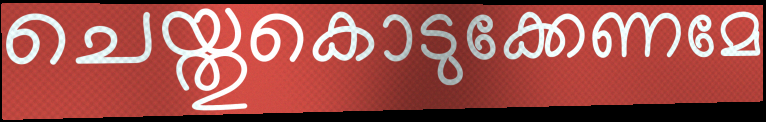
ചെയ്തുകൊടുക്കേണമേ